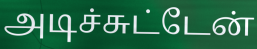
அடிச்சுட்டேன்